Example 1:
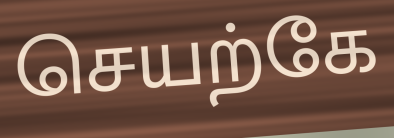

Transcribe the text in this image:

செயற்கே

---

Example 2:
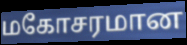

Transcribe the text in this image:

மகோசரமான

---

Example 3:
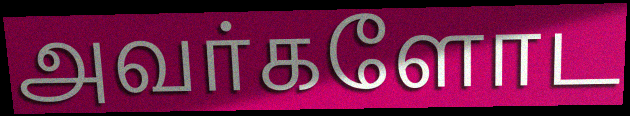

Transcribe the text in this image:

அவர்களோட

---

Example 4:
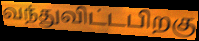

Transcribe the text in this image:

வந்துவிட்டபிறகு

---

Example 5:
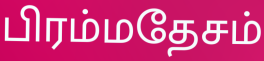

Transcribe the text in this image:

பிரம்மதேசம்